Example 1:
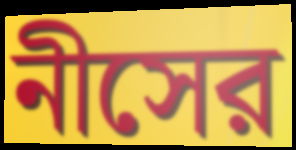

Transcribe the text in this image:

নীসের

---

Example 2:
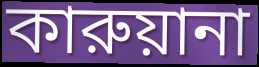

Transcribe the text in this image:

কারুয়ানা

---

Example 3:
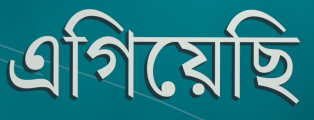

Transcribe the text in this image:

এগিয়েছি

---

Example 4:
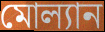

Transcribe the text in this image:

মোল্যান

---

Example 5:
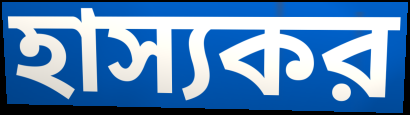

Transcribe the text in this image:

হাস্যকর